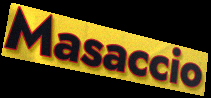
Masaccio